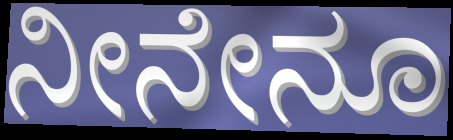
ನೀನೇನೂ